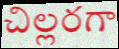
చిల్లరగా